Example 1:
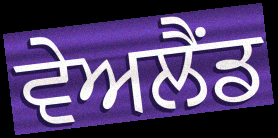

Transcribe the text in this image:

ਵੇਅਲੈਂਡ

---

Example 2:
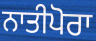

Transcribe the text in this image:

ਨਾਤੀਪੋਰਾ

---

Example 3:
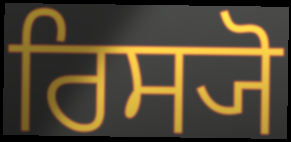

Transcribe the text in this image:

ਰਿਸ੍ਯੋ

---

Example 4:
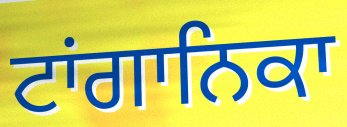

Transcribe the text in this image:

ਟਾਂਗਾਨਿਕਾ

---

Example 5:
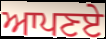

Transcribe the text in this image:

ਆਪਣਏ